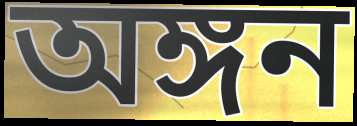
অঙ্গন